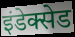
इंडेक्सेड